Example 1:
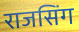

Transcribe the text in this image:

राजसिंग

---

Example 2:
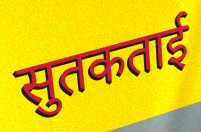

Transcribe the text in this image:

सुतकताई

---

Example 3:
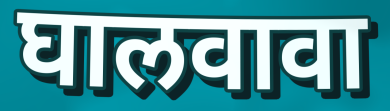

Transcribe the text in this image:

घालवावा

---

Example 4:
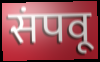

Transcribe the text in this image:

संपवू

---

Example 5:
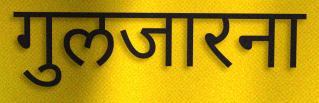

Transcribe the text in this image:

गुलजारना